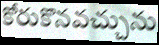
కోరుకొనవచ్చును